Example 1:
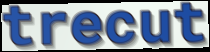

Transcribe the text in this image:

trecut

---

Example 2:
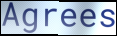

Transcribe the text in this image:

Agrees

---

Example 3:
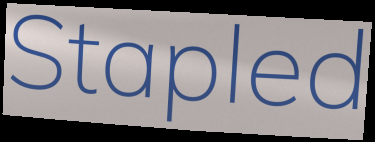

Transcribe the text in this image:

Stapled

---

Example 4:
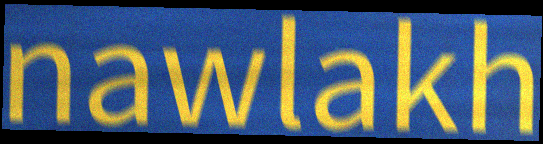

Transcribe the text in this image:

nawlakh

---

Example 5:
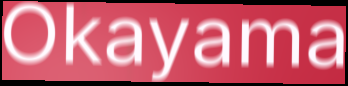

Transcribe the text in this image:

Okayama